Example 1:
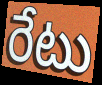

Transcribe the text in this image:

రేటు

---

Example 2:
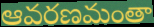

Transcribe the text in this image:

ఆవరణమంతా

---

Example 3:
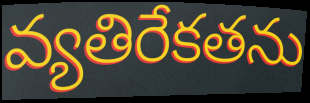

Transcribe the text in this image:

వ్యతిరేకతను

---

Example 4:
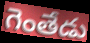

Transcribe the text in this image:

గెంతేడు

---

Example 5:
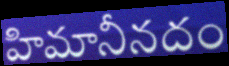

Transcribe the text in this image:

హిమానీనదం